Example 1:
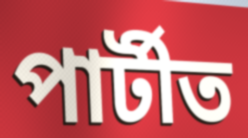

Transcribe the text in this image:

পাৰ্টীত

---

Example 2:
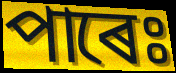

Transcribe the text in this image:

পাৰেঃ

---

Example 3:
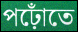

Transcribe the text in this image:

পঢ়োঁতে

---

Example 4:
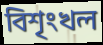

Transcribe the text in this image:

বিশৃংখল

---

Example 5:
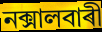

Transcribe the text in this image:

নক্সালবাৰী